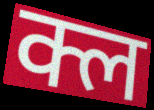
क्ल